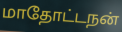
மாதோட்டநன்